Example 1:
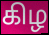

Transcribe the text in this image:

கிழ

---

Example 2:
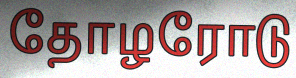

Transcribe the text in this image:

தோழரோடு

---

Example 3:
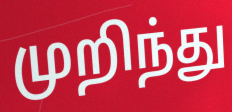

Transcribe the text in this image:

முறிந்து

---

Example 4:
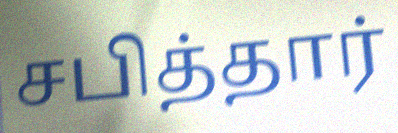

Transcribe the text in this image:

சபித்தார்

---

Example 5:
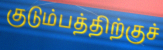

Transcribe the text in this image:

குடும்பத்திற்குச்